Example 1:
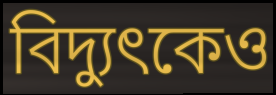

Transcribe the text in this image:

বিদ্যুৎকেও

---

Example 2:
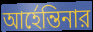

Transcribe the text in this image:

আর্হেন্তিনার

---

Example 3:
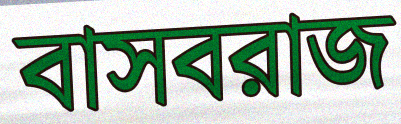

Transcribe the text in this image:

বাসবরাজ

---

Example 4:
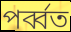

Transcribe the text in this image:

পর্ব্বত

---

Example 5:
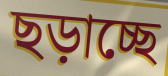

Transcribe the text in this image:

ছড়াচ্ছে